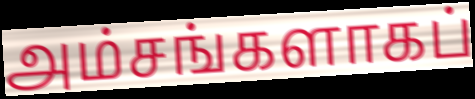
அம்சங்களாகப்